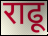
राढू